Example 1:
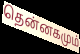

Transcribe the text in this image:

தென்னகமும்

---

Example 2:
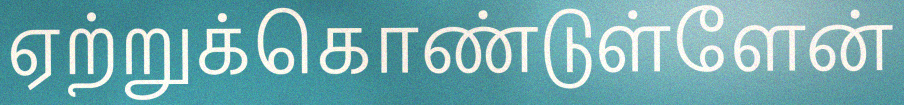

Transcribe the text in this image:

ஏற்றுக்கொண்டுள்ளேன்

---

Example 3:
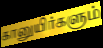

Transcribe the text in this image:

கானுயிர்களும்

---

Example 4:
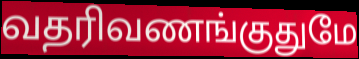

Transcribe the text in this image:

வதரிவணங்குதுமே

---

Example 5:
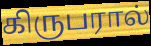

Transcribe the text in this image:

கிருபரால்